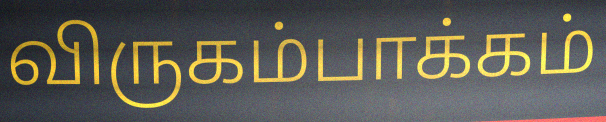
விருகம்பாக்கம்